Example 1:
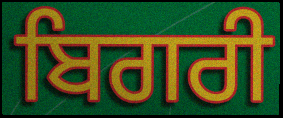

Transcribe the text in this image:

ਬਿਗਰੀ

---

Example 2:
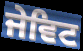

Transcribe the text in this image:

ਜੇਵਿਟ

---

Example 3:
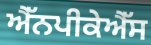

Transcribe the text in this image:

ਐੱਨਪੀਕੇਐੱਸ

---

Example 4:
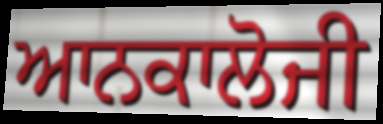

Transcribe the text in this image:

ਆਨਕਾਲੋਜੀ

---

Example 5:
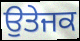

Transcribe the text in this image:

ਉਤੇਜਕ